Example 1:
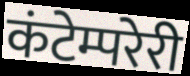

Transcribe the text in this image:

कंटेम्परेरी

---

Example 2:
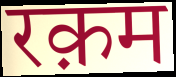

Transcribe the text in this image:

रक़म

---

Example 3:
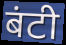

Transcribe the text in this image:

बंटी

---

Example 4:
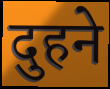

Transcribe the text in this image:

दुहने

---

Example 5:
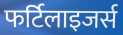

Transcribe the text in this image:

फर्टिलाइजर्स